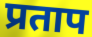
प्रताप